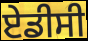
ਏਡੀਸੀ